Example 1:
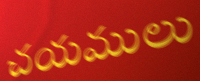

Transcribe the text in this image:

చయములు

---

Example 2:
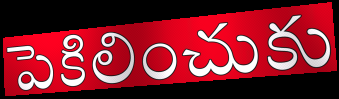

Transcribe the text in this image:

పెకిలించుకు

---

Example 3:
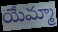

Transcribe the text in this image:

యేమ్మా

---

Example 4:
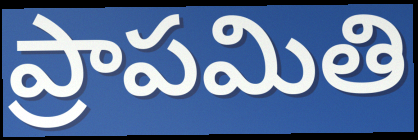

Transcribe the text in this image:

ప్రాపమితి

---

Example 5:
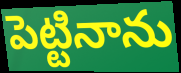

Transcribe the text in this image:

పెట్టినాను